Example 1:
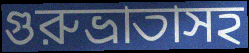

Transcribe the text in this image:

গুরুভ্রাতাসহ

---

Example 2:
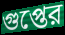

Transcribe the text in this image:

গুপ্তের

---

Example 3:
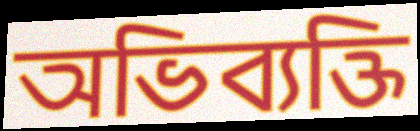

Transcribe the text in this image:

অভিব্যক্তি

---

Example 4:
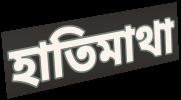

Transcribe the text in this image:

হাতিমাথা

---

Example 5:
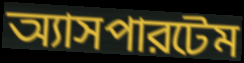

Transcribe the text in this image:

অ্যাসপারটেম